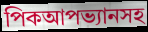
পিকআপভ্যানসহ